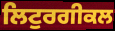
ਲਿਟੁਰਗੀਕਲ